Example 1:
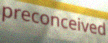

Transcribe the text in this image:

preconceived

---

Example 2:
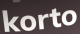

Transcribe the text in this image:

korto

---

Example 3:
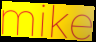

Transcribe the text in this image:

mike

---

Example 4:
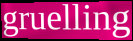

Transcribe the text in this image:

gruelling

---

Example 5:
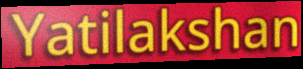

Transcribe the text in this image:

Yatilakshan